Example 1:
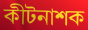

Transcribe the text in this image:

কীটনাশক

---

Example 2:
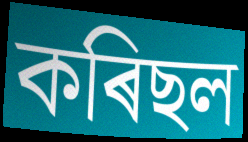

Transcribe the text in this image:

কৰিছল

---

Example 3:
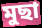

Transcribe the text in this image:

মুছা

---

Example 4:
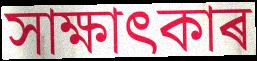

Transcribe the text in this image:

সাক্ষাৎকাৰ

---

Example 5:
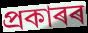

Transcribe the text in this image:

প্ৰকাৰৰ